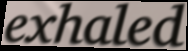
exhaled